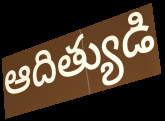
ఆదిత్యుడి